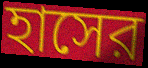
হাসের